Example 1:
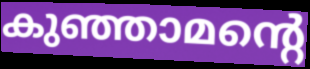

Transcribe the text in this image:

കുഞ്ഞാമന്റെ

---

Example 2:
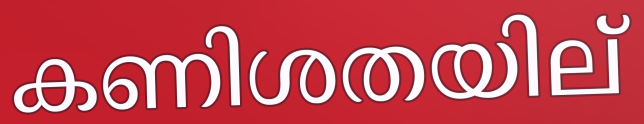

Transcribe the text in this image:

കണിശതയില്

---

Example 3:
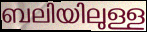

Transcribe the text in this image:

ബലിയിലുള്ള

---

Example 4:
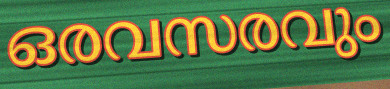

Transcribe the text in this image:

ഒരവസരവും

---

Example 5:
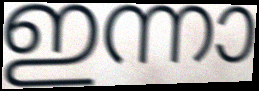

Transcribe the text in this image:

ഇന്നാ